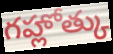
గహ్లోత్కు